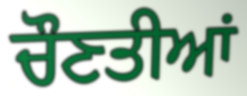
ਚੌਣਤੀਆਂ